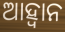
ଆହ୍ୱାନ